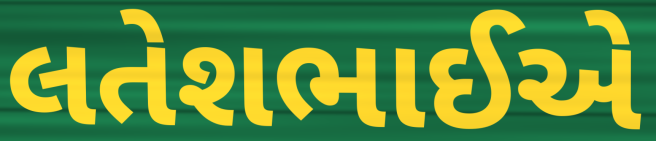
લતેશભાઈએ